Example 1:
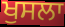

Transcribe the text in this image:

ਖੁਸਲਾ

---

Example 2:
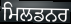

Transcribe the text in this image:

ਮਿਲਡਨਰ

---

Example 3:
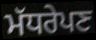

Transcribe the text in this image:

ਮੱਧਰੇਪਣ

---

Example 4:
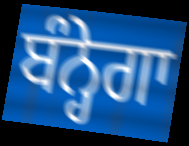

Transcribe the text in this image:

ਬੰਨ੍ਹੇਗਾ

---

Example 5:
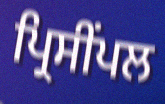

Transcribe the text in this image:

ਪ੍ਰਿਸੀਂਪਲ